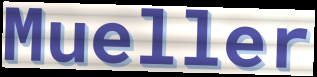
Mueller